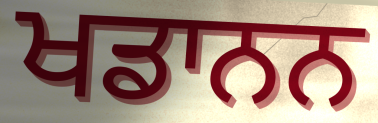
ਖਡਾਨਨ